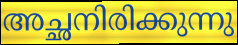
അച്ഛനിരിക്കുന്നു